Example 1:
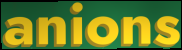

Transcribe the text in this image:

anions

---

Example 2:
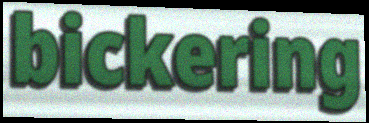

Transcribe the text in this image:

bickering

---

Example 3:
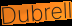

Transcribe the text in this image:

Dubrell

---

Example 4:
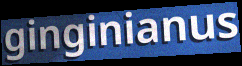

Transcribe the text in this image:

ginginianus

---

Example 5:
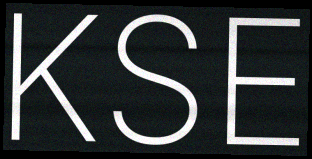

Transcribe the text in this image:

KSE